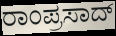
ರಾಂಪ್ರಸಾದ್